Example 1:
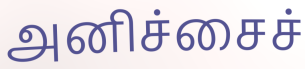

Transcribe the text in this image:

அனிச்சைச்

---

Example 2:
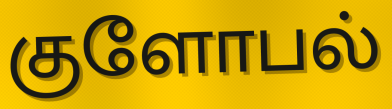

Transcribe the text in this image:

குளோபல்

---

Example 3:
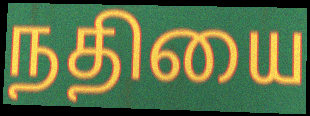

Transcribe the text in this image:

நதியை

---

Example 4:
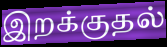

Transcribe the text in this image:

இறக்குதல்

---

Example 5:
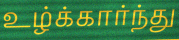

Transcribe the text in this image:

உழ்க்கார்ந்து